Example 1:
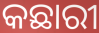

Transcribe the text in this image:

କଛାରୀ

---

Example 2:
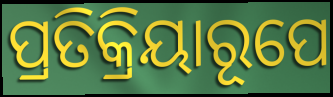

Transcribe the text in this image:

ପ୍ରତିକ୍ରିୟାରୂପେ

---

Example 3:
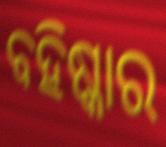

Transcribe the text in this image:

ବହିଷ୍କାର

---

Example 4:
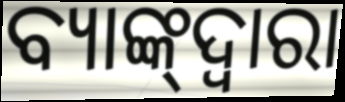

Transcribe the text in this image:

ବ୍ୟାଙ୍କ୍‌ଦ୍ୱାରା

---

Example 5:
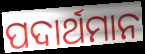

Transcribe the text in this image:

ପଦାର୍ଥମାନ